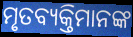
ମୃତବ୍ୟକ୍ତିମାନଙ୍କ